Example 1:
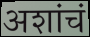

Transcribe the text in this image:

अशांचं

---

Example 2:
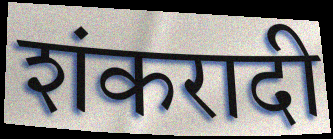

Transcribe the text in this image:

शंकरादी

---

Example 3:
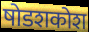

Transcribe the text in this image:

षोडशकोश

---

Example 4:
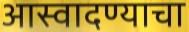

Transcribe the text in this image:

आस्वादण्याचा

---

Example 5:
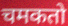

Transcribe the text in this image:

चमकतो